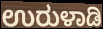
ಉರುಳಾಡಿ